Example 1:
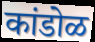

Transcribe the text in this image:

कांडोळ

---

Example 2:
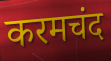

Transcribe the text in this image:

करमचंद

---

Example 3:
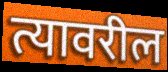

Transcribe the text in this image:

त्यावरील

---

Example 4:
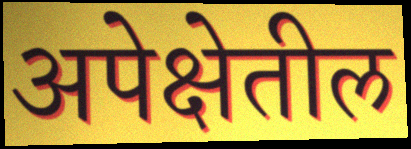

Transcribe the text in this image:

अपेक्षेतील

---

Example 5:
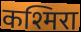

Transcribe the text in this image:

कश्मिरा